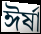
ঈর্ষা